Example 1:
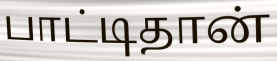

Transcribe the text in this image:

பாட்டிதான்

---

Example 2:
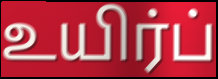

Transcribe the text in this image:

உயிர்ப்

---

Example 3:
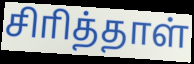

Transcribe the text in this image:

சிரித்தாள்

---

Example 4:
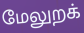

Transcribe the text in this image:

மேலுறக்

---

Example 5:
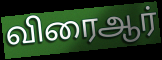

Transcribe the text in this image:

விரைஆர்